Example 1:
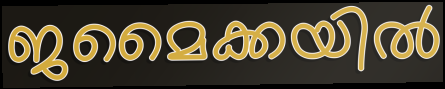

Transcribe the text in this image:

ജമൈക്കയിൽ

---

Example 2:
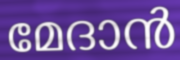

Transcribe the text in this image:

മേദാൻ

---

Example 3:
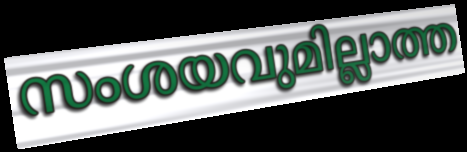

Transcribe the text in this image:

സംശയവുമില്ലാത്ത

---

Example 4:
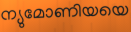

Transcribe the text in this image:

ന്യുമോണിയയെ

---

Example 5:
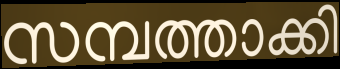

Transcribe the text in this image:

സമ്പത്താക്കി